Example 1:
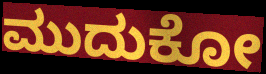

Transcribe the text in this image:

ಮುದುಕೋ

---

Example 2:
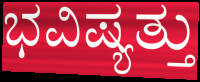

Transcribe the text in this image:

ಭವಿಷ್ಯತ್ತು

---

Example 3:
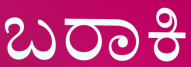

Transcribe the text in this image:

ಬರಾಕಿ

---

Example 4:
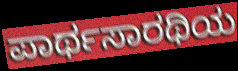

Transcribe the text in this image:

ಪಾರ್ಥಸಾರಥಿಯ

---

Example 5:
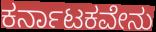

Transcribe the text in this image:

ಕರ್ನಾಟಕವೇನು